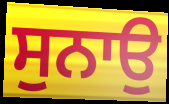
ਸੁਨਾਉ